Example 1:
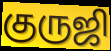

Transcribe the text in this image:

குருஜி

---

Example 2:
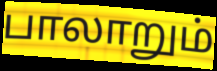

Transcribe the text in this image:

பாலாறும்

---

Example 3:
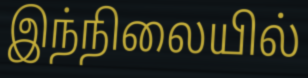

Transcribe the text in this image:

இந்நிலையில்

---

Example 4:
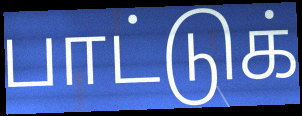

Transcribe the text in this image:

பாட்டுக்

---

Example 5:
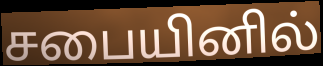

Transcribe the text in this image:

சபையினில்